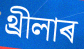
থ্ৰীলাৰ